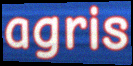
agris